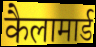
कैलामार्ड